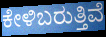
ಕೇಳಿಬರುತ್ತಿವೆ